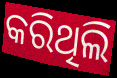
କରିଥିଲି